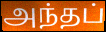
அந்தப்